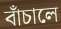
বাঁচালে